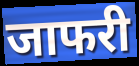
जाफरी